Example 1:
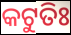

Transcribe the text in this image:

କଟୁତିଃ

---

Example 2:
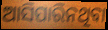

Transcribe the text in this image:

ଆସିପାରିନଥିବା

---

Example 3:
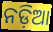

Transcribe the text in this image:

ନଡ଼ିଆ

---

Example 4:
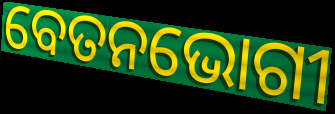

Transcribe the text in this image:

ବେତନଭୋଗୀ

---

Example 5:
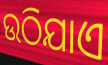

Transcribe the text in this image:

ଉଠିଯାଏ